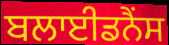
ਬਲਾਈਡਨੈਂਸ